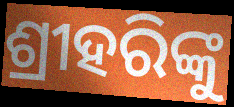
ଶ୍ରୀହରିଙ୍କୁ